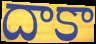
దాకా